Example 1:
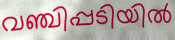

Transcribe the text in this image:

വഞ്ചിപ്പടിയിൽ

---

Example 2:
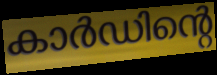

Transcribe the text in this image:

കാർഡിന്റെ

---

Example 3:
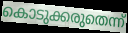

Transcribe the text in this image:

കൊടുക്കരുതെന്ന്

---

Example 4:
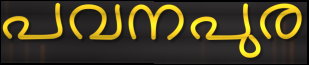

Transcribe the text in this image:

പവനപുര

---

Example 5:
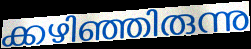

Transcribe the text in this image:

ക്കഴിഞ്ഞിരുന്നു